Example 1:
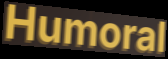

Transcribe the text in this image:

Humoral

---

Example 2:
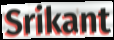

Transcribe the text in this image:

Srikant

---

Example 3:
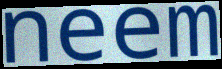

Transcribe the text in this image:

neem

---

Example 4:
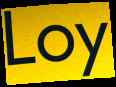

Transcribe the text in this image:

Loy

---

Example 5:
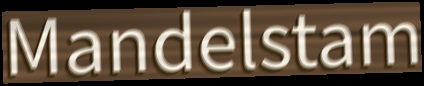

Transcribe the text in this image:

Mandelstam